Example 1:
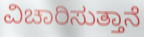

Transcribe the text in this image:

ವಿಚಾರಿಸುತ್ತಾನೆ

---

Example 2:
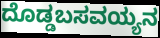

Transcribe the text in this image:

ದೊಡ್ಡಬಸವಯ್ಯನ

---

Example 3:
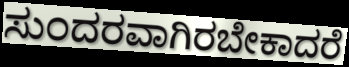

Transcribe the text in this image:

ಸುಂದರವಾಗಿರಬೇಕಾದರೆ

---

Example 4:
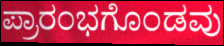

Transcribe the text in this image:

ಪ್ರಾರಂಭಗೊಂಡವು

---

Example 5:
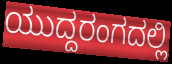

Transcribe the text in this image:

ಯುದ್ದರಂಗದಲ್ಲಿ